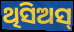
ଥିସିଅସ୍